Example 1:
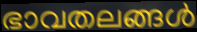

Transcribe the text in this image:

ഭാവതലങ്ങൾ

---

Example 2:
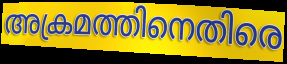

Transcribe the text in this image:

അക്രമത്തിനെതിരെ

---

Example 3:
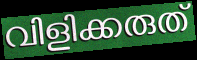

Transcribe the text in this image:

വിളിക്കരുത്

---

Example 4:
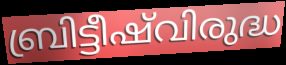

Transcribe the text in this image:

ബ്രിട്ടീഷ്‌വിരുദ്ധ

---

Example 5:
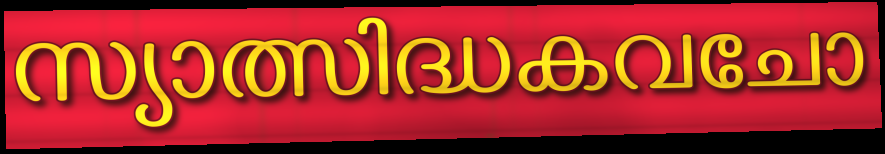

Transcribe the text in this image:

സ്യാത്സിദ്ധകവചോ